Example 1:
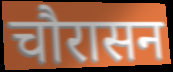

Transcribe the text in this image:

चौरासन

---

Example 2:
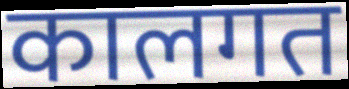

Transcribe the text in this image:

कालगत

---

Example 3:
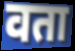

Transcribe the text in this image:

वता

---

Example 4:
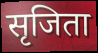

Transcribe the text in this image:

सृजिता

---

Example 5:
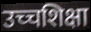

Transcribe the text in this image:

उच्‍चशिक्षा